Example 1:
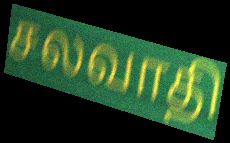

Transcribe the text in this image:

சலவாதி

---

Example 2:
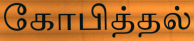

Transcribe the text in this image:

கோபித்தல்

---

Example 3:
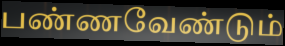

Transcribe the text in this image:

பண்ணவேண்டும்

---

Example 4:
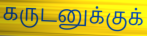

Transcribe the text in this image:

கருடனுக்குக்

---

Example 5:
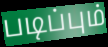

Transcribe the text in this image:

படிப்பும்